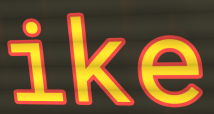
ike